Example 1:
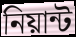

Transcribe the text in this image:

নিয়ান্ট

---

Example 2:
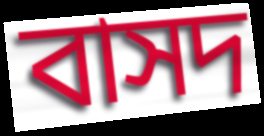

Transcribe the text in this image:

বাসদ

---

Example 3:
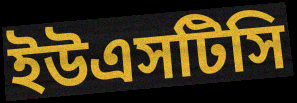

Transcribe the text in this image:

ইউএসটিসি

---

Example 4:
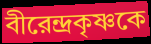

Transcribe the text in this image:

বীরেন্দ্রকৃষ্ণকে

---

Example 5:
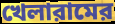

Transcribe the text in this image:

খেলারামের